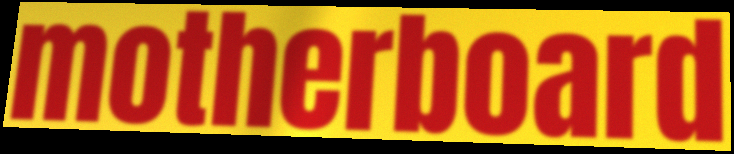
motherboard